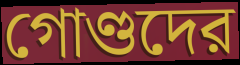
গোণ্ডদের